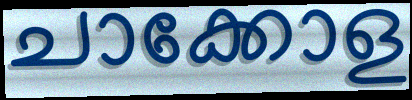
ചാക്കോള